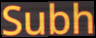
Subh